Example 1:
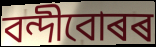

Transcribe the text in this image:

বন্দীবোৰৰ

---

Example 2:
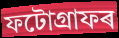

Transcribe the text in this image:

ফটোগ্ৰাফৰ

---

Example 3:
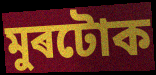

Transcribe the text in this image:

মুৰটোক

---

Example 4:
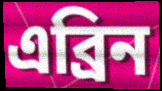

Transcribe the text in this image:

এব্ৰিন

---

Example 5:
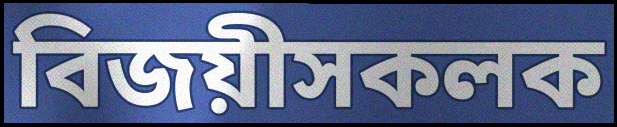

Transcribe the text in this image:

বিজয়ীসকলক